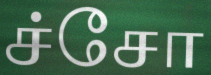
ச்சோ